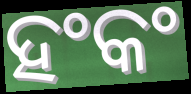
ହଂକଂ